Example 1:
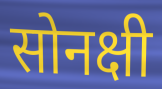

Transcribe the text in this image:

सोनक्षी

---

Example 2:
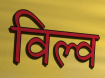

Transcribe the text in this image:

विल्व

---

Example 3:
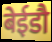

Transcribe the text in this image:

बेईडौ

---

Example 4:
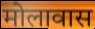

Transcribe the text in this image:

मोलावास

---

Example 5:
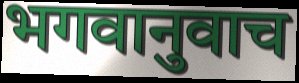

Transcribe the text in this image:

भगवानुवाच